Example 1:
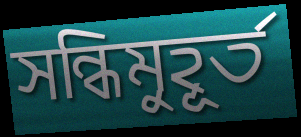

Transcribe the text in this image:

সন্ধিমুহূর্ত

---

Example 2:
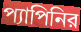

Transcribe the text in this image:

প্যাপিনির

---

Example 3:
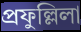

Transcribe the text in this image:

প্রফুল্লিলা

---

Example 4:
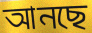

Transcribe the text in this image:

আনছে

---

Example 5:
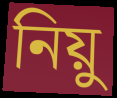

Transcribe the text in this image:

নিয়ু